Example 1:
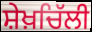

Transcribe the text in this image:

ਸ਼ੇਖ਼ਚਿੱਲੀ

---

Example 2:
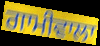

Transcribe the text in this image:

ਗਾਮੀਵਾਲਾ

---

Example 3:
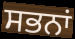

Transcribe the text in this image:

ਸਭਨਾਂ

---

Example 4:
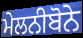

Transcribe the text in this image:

ਮੇਲਨੀਬੋਨੇ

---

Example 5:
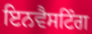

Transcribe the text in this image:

ਇਨਵੈਸਟਿੰਗ